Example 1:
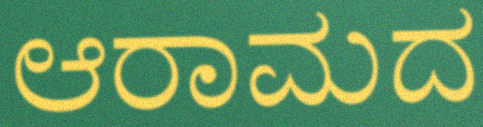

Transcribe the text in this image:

ಆರಾಮದ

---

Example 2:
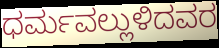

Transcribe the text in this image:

ಧರ್ಮವಲ್ಲುಳಿದವರ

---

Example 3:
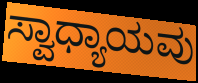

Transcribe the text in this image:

ಸ್ವಾಧ್ಯಾಯವು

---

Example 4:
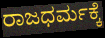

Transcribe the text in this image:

ರಾಜಧರ್ಮಕ್ಕೆ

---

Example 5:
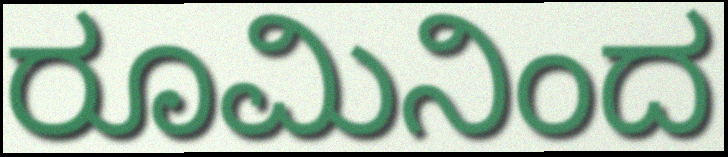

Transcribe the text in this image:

ರೂಮಿನಿಂದ